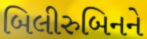
બિલીરુબિનને